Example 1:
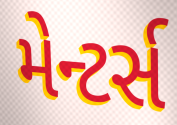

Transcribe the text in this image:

મેન્ટર્સ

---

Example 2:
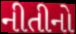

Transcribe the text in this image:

નીતીનો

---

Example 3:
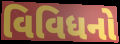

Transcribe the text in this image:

વિવિધનો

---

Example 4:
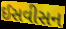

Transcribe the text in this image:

ઈસવીસન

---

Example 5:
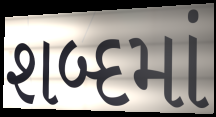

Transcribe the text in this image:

શબ્દમાં